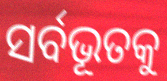
ସର୍ବଭୂତକୁ